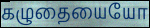
கழுதையையோ